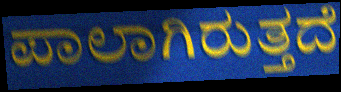
ಪಾಲಾಗಿರುತ್ತದೆ